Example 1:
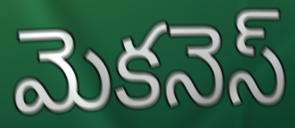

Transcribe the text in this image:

మెకనెస్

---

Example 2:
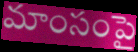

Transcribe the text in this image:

మాంసంపై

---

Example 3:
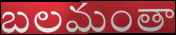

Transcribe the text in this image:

బలమంతా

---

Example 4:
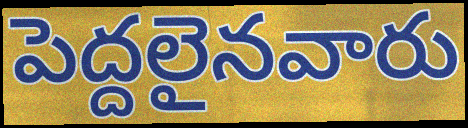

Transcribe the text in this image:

పెద్దలైనవారు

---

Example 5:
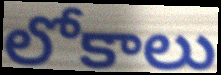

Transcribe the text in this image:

లోకాలు